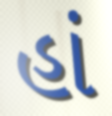
હાં